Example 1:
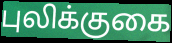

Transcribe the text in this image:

புலிக்குகை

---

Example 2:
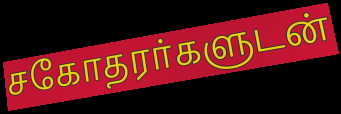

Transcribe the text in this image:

சகோதரர்களுடன்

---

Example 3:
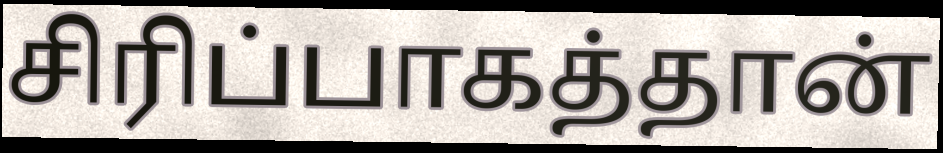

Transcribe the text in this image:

சிரிப்பாகத்தான்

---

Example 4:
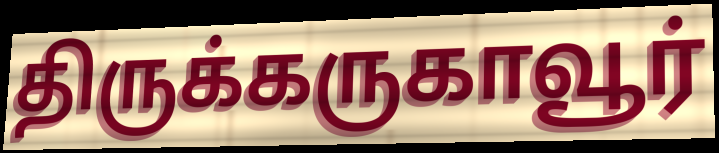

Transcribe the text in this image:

திருக்கருகாவூர்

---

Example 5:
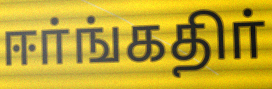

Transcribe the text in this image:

ஈர்ங்கதிர்